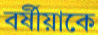
বর্ষীয়াকে